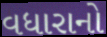
વધારાનો